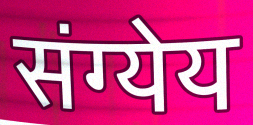
संग्येय